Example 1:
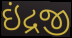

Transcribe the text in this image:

ઇંદ્રજી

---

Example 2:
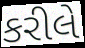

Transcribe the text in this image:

કરીલે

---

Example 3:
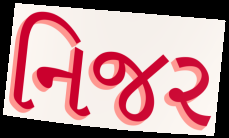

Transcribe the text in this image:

નિજર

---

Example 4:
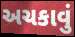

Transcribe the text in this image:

અચકાવું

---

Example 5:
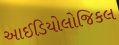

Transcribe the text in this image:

આઈડિયોલોજિકલ